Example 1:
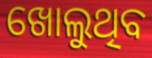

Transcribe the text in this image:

ଖୋଲୁଥିବ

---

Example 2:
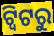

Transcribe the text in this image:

ଟ୍ବିଟରୁ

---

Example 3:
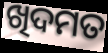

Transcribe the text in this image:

ଖିଦମତ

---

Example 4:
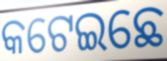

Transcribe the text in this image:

କଟେଇଛେ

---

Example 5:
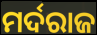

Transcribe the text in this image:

ମର୍ଦରାଜ